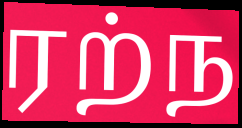
ரற்ந